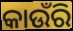
କାଉଁରି